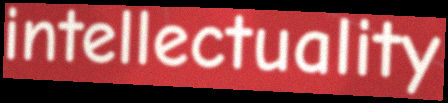
intellectuality